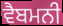
ਵੈਬਮਨੀ